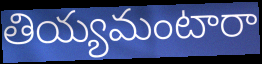
తియ్యమంటారా